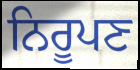
ਨਿਰੂਪਣ